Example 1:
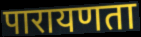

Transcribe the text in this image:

पारायणता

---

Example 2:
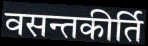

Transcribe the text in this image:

वसन्तकीर्ति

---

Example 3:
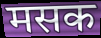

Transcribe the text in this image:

मसक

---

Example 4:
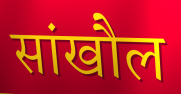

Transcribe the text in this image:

सांखौल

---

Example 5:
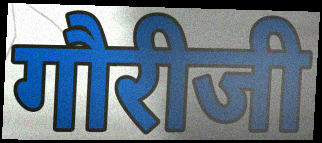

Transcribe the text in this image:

गौरीजी